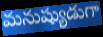
మనుష్యుడుగా